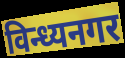
विन्ध्यनगर